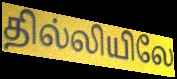
தில்லியிலே